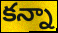
కన్నా